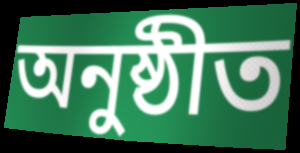
অনুষ্ঠীত